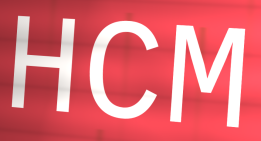
HCM